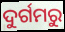
ଦୁର୍ଗମରୁ